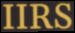
IIRS